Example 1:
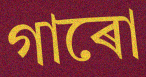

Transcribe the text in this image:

গাৰো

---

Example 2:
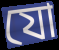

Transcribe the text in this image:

যো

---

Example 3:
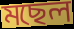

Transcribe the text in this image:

মছেল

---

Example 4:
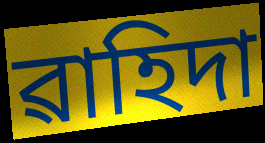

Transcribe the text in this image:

ৱাহিদা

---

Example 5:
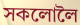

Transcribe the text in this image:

সকলোলৈ